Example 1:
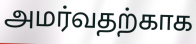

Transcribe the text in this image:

அமர்வதற்காக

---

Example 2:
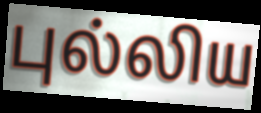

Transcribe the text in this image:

புல்லிய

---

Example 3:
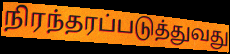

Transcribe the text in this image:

நிரந்தரப்படுத்துவது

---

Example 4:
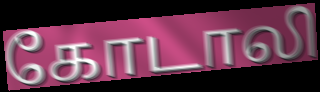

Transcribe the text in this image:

கோடாலி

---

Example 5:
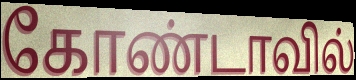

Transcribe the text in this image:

கோண்டாவில்